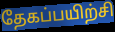
தேகப்பயிற்சி